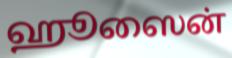
ஹூஸைன்